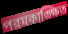
পরমকাঙ্ক্ষিত